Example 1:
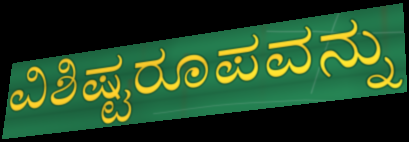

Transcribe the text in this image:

ವಿಶಿಷ್ಟರೂಪವನ್ನು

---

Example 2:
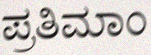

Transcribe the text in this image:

ಪ್ರತಿಮಾಂ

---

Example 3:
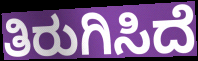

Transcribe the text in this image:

ತಿರುಗಿಸಿದೆ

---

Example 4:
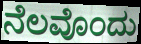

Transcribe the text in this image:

ನೆಲವೊಂದು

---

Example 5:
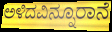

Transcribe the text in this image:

ಅಳಿದವಿನ್ನೂರಾನೆ